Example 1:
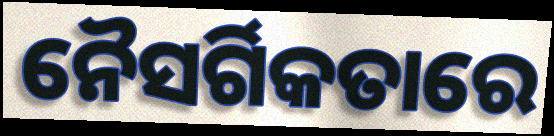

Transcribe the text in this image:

ନୈସର୍ଗିକତାରେ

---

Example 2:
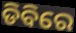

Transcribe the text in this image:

ଡିବିରେ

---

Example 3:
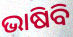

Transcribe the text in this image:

ଭାଷିବି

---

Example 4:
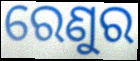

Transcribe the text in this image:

ରେଣୁର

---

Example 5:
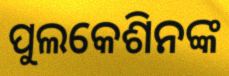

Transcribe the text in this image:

ପୁଲକେଶିନଙ୍କ